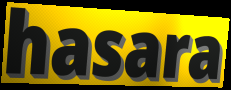
hasara